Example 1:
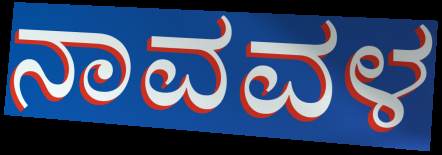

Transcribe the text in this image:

ನಾವವಳ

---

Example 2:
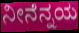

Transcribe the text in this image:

ನೀನೆನ್ನಯ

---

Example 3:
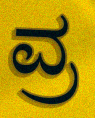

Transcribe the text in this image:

ವ್ರ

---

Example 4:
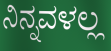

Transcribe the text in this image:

ನಿನ್ನವಳಲ್ಲ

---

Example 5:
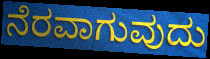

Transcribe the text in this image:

ನೆರವಾಗುವುದು